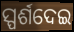
ସ୍ପର୍ଶଦେଇ